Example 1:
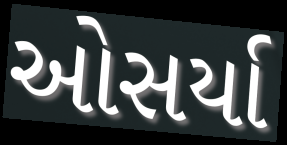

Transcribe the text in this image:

ઓસર્યા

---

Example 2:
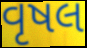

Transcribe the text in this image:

વૃષલ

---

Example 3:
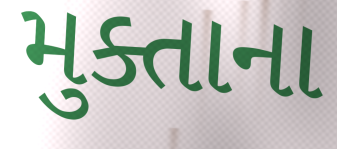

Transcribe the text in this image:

મુક્તાના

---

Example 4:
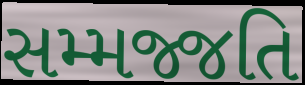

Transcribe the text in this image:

સમ્મજ્જતિ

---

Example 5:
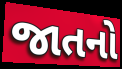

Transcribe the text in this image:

જાતનો